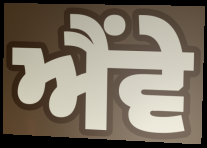
ਐਂਵੇ